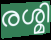
രശ്മി